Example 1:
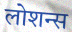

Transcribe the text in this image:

लोशन्स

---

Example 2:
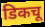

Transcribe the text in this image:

डिकचू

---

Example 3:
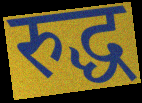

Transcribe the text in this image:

रुद्ध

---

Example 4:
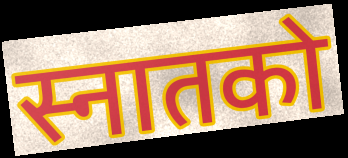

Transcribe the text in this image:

स्नातको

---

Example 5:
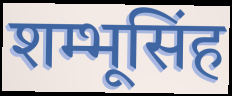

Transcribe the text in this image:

शम्भूसिंह